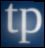
tp